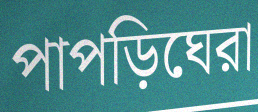
পাপড়িঘেরা